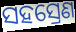
ସହସ୍ରେଣ